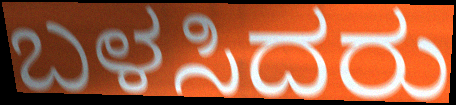
ಬಳಸಿದರು